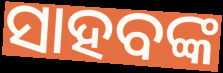
ସାହବଙ୍କ